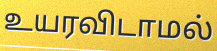
உயரவிடாமல்